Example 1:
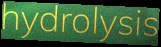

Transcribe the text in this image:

hydrolysis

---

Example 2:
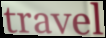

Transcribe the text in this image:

travel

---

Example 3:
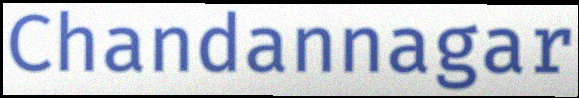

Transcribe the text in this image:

Chandannagar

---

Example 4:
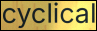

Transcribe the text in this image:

cyclical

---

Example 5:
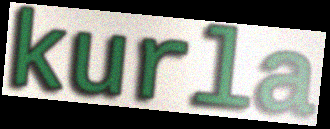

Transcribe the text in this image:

kurla